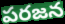
పరజన